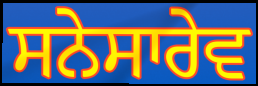
ਸਨੇਸਾਰੇਵ